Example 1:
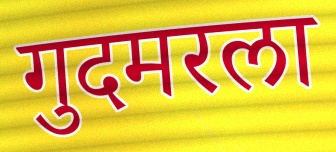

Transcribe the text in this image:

गुदमरला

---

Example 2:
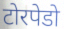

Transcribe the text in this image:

टोरपेडो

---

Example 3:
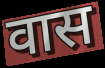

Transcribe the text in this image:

वास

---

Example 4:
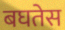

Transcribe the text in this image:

बघतेस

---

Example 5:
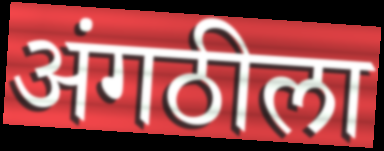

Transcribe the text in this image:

अंगठीला